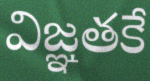
విజ్ఞతకే